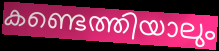
കണ്ടെത്തിയാലും